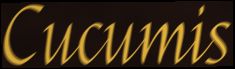
Cucumis